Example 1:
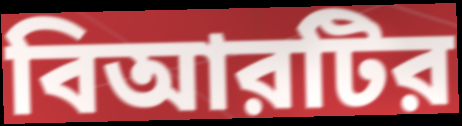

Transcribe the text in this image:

বিআরটির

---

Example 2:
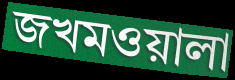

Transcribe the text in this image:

জখমওয়ালা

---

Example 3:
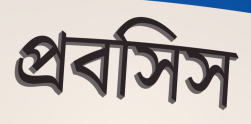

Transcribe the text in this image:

প্রবসিস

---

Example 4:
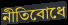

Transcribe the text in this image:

নীতিবোধে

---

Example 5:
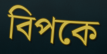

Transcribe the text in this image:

বিপকে